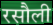
रसौली